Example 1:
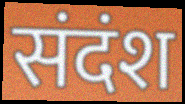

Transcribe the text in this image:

संदंश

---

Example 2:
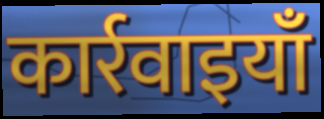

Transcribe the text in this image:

कार्रवाइयाँ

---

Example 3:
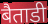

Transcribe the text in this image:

बैताडी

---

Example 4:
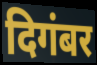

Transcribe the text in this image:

दिगंबर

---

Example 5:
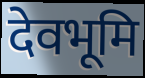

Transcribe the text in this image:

देवभूमि